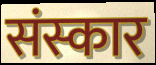
संस्‍कार